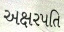
અક્ષરપતિ